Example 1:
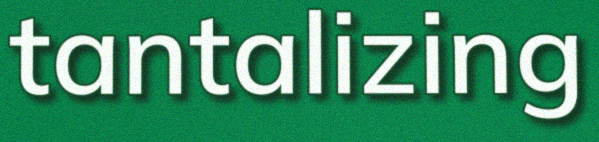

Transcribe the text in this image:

tantalizing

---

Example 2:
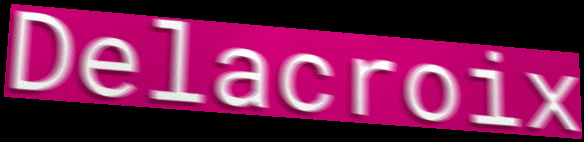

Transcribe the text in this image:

Delacroix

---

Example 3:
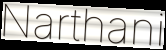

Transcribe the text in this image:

Narthani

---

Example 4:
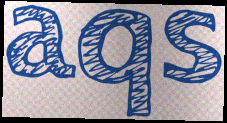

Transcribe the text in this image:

aqs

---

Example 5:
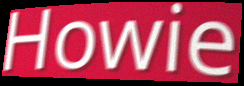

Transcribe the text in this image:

Howie